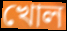
খোল